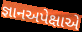
જ્ઞાનઅપેક્ષાએ